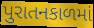
પુરાતનકાળમાં